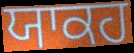
ਯਾਕਹ